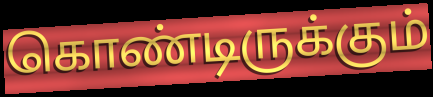
கொண்டிருக்கும்